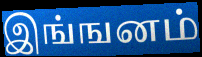
இங்ஙனம்